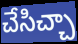
చేసిచ్చా